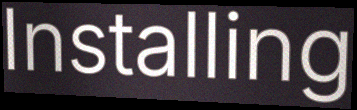
Installing